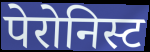
पेरोनिस्ट